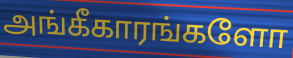
அங்கீகாரங்களோ